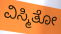
ವಿಸ್ಮಿತೋ